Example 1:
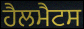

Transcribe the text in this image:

ਹੈਲਮੈਟਸ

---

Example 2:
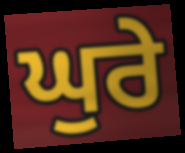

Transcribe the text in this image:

ਘੁਰੇ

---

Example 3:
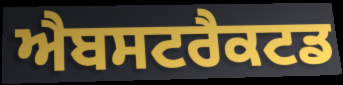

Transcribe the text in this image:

ਐਬਸਟਰੈਕਟਡ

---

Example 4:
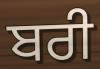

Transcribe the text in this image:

ਬਰੀ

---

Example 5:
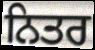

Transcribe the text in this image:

ਨਿਤਰ